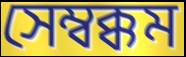
সেম্বক্কম